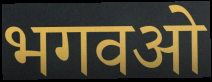
भगवओ